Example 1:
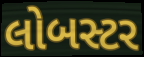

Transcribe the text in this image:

લોબસ્ટર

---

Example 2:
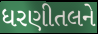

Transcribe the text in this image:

ધરણીતલને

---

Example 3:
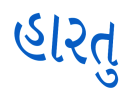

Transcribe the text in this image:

હારતુ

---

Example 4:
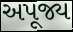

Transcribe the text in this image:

અપૂજ્ય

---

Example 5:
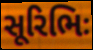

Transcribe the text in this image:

સૂરિભિઃ